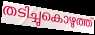
തടിച്ചുകൊഴുത്ത്